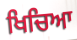
ਖਿਚਿਆ